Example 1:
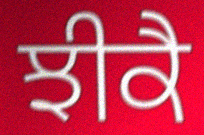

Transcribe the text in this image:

ਝੀਕੈ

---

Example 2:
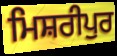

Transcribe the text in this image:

ਮਿਸ਼ਰੀਪੁਰ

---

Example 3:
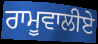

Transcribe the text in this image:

ਰਾਮੂਵਾਲੀਏ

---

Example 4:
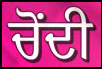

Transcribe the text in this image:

ਚੋੰਦੀ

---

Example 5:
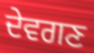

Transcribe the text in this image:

ਦੇਵਗਣ